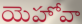
యెహోవా